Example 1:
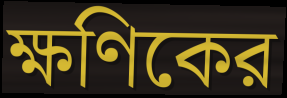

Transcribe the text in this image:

ক্ষণিকের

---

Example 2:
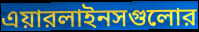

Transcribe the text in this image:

এয়ারলাইনসগুলোর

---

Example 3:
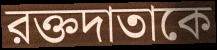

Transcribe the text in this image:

রক্তদাতাকে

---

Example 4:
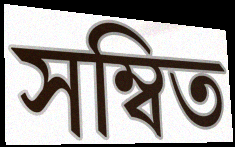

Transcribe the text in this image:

সম্বিত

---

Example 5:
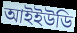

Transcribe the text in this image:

আইইউডি